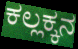
ಕಲ್ಲಕ್ಕನ